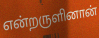
என்றருளினான்